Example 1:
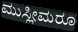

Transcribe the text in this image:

ಮುಸ್ಲೀಮರೂ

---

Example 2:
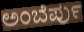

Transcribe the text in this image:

ಅಂಬೆರ್ಪು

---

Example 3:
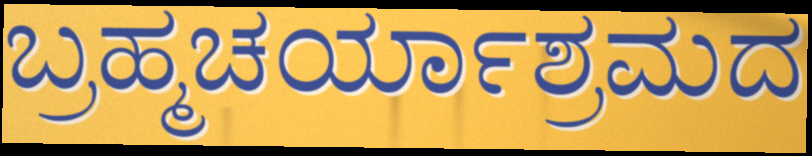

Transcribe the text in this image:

ಬ್ರಹ್ಮಚರ್ಯಾಶ್ರಮದ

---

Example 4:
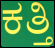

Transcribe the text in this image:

ಕತ್ತಿ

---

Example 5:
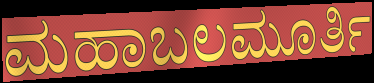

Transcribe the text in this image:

ಮಹಾಬಲಮೂರ್ತಿ